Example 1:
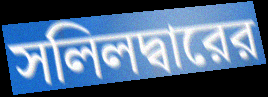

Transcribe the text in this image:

সলিলদ্বারের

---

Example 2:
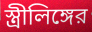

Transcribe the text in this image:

স্ত্রীলিঙ্গের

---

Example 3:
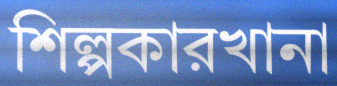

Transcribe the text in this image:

শিল্পকারখানা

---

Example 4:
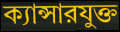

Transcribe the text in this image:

ক্যান্সারযুক্ত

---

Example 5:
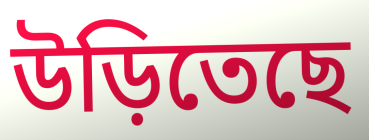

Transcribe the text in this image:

উড়িতেছে